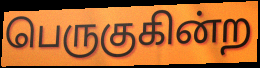
பெருகுகின்ற